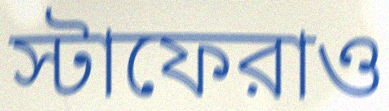
স্টাফেরাও